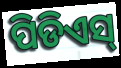
ପିଡିଏସ୍